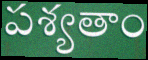
పశ్యతాం